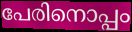
പേരിനൊപ്പം